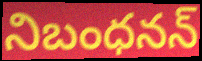
నిబంధనన్